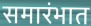
समारंभात